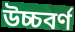
উচ্চবর্ণ